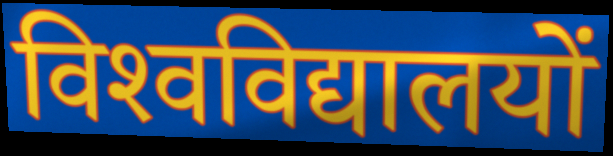
विश्‍वविद्यालयों